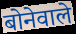
बोनेवाले